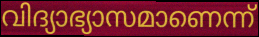
വിദ്യാഭ്യാസമാണെന്ന്